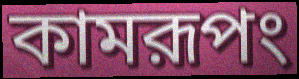
কামরূপং